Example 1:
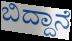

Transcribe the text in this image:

ಬಿದ್ದಾನೆ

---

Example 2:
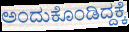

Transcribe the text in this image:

ಅಂದುಕೊಂಡಿದ್ದಕ್ಕೆ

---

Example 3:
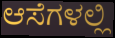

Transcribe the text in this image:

ಆಸೆಗಳಲ್ಲಿ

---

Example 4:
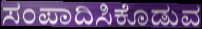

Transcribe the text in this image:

ಸಂಪಾದಿಸಿಕೊಡುವ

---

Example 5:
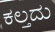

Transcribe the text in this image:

ಕಲ್ತದು